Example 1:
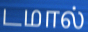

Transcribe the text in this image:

டமால்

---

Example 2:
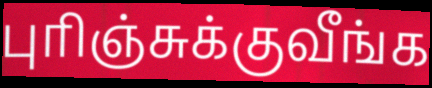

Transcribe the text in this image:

புரிஞ்சுக்குவீங்க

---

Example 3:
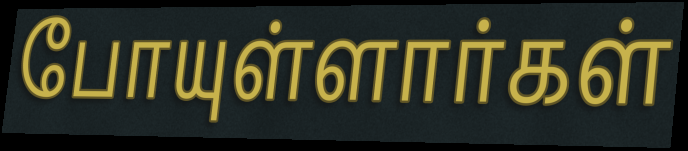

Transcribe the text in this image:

போயுள்ளார்கள்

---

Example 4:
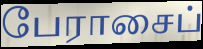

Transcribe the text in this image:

பேராசைப்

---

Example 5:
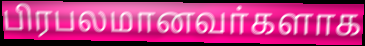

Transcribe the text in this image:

பிரபலமானவர்களாக